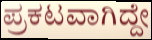
ಪ್ರಕಟವಾಗಿದ್ದೇ